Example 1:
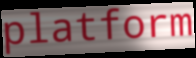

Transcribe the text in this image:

platform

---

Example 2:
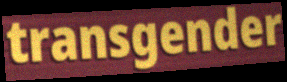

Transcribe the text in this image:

transgender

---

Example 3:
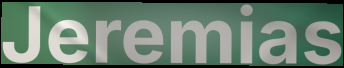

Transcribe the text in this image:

Jeremias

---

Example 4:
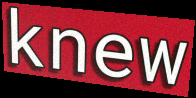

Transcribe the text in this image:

knew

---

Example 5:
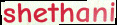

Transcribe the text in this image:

shethani